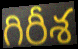
గిరీశ